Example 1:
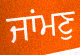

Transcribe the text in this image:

ਜਾਂਮਣੁ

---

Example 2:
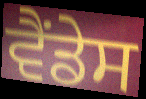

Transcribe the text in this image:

ਵੈਂਡੇਸ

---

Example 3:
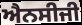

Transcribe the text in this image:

ਐਨਸੀਜੀ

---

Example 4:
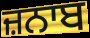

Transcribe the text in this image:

ਜ਼ਨਾਬ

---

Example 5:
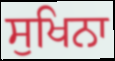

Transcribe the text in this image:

ਸੁਖਿਨਾ